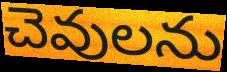
చెవులను